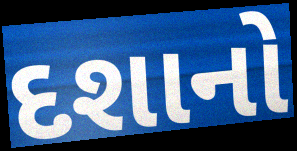
દશાનો